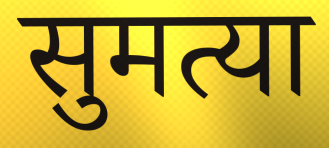
सुमत्या